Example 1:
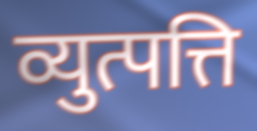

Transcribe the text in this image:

व्युत्पत्ति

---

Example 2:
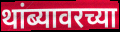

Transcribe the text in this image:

थांब्यावरच्या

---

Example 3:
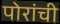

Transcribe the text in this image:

पोरांची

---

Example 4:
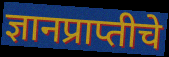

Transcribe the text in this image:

ज्ञानप्राप्तीचे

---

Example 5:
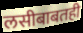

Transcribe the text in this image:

लसीबाबतही